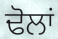
ਢੋਲਾਂ